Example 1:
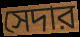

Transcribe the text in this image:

সেদার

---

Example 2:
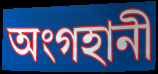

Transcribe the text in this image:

অংগহানী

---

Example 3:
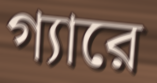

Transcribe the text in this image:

গ্যারে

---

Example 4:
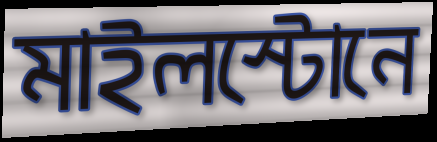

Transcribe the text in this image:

মাইলস্টোনে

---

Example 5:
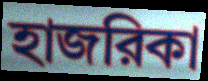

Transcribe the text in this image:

হাজরিকা